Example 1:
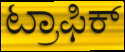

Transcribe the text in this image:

ಟ್ರಾಫಿಕ್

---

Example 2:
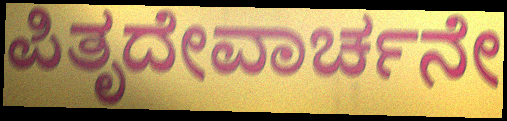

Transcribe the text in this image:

ಪಿತೃದೇವಾರ್ಚನೇ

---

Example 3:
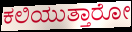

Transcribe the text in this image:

ಕಲಿಯುತ್ತಾರೋ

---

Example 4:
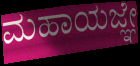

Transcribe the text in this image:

ಮಹಾಯಜ್ಞೇ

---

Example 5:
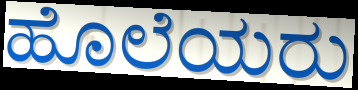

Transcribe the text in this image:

ಹೊಲೆಯರು